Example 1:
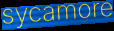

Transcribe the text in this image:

sycamore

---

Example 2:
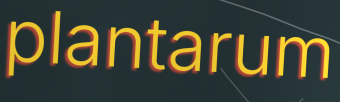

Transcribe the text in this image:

plantarum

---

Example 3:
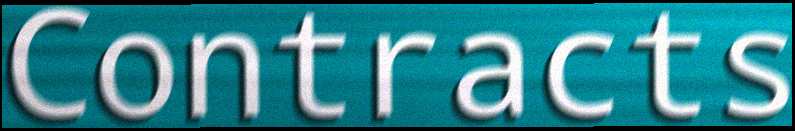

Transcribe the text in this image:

Contracts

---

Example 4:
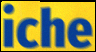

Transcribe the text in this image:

iche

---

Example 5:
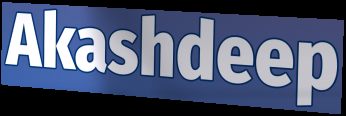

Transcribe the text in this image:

Akashdeep